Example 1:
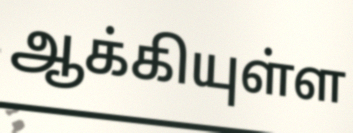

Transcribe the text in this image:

ஆக்கியுள்ள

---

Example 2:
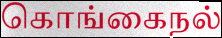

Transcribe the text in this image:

கொங்கைநல்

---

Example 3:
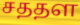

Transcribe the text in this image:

சததள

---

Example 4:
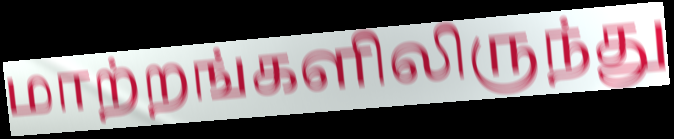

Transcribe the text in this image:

மாற்றங்களிலிருந்து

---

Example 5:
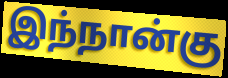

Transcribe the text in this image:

இந்நான்கு